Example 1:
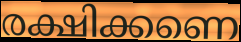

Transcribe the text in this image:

രക്ഷിക്കണെ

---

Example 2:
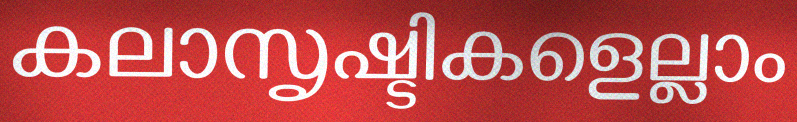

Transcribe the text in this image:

കലാസൃഷ്ടികളെല്ലാം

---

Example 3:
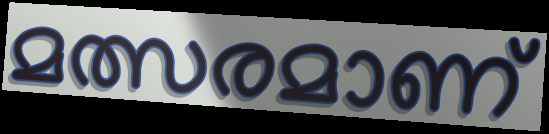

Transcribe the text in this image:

മത്സരമാണ്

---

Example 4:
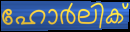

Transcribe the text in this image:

ഹോർലിക്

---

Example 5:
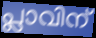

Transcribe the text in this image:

പ്ലാവിന്